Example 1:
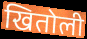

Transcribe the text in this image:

खितोली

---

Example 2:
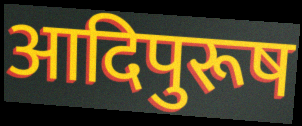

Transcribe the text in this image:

आदिपुरूष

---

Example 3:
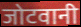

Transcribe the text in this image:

जोटवानी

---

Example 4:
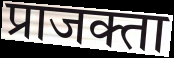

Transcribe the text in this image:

प्राजक्ता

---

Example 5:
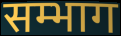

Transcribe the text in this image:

सम्भाग